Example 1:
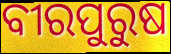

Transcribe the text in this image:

ବୀରପୁରୁଷ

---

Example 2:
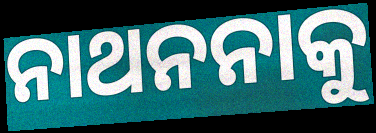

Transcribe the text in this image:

ନାଥନନାକୁ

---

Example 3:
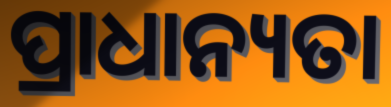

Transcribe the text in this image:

ପ୍ରାଧାନ୍ୟତା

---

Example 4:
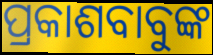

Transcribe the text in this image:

ପ୍ରକାଶବାବୁଙ୍କ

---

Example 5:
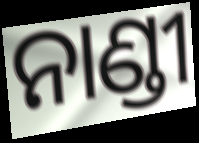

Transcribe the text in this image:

ନାଣ୍ଡୀ